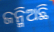
ଜନ୍ମିଅଛି